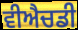
ਵੀਐਚਡੀ